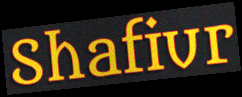
Shafiur